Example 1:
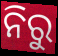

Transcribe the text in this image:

ନିରୁ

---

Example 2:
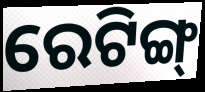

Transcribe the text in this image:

ରେଟିଙ୍ଗ୍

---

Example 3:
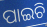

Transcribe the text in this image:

ପାଇଚି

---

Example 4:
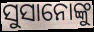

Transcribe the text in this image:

ସୁସାନୋଙ୍କୁ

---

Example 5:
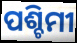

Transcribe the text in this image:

ପଶ୍ଚିମୀ